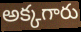
అక్కగారు